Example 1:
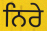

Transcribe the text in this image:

ਨਿਰੇ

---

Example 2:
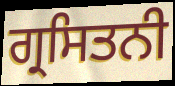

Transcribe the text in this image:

ਗ੍ਰਸਿਤਨੀ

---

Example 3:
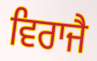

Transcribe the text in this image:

ਵਿਰਾਜੈ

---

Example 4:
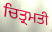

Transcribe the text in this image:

ਚਿਤ੍ਰਮਤੀ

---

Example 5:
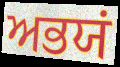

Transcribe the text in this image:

ਅਭਯਂ